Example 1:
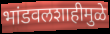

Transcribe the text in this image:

भांडवलशाहीमुळे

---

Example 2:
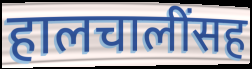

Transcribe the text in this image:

हालचालींसह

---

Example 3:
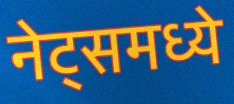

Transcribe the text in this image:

नेट्समध्ये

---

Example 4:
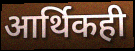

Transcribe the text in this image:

आर्थिकही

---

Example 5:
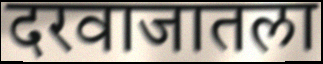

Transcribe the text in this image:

दरवाजातला